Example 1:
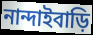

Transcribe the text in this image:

নান্দাইবাড়ি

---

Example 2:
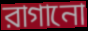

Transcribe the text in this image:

রাগানো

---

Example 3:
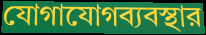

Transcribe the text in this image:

যোগাযোগব্যবস্থার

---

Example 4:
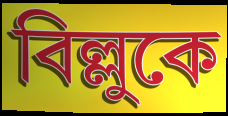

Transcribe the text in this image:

বিল্লুকে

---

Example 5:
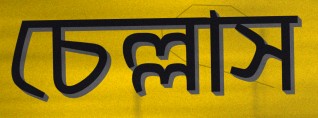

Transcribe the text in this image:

চেল্লাস